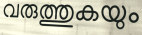
വരുത്തുകയും